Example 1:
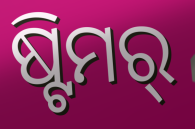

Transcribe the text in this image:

ଷ୍ଟିମର୍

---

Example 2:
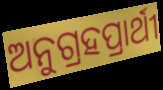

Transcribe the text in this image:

ଅନୁଗ୍ରହପ୍ରାର୍ଥୀ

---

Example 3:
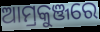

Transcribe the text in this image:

ଆମ୍ରକୁଞ୍ଜରେ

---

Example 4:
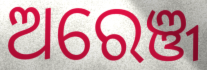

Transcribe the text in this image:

ଅରେଞ୍ଜ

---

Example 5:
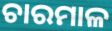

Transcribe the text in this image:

ଚାରମାଳ